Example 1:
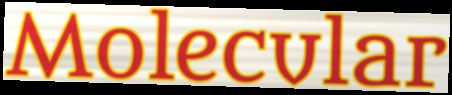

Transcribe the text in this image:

Molecular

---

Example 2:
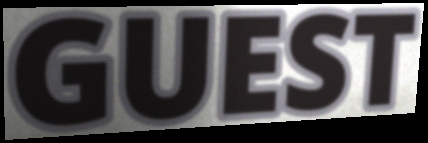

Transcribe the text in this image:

GUEST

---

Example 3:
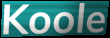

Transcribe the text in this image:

Koole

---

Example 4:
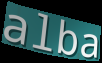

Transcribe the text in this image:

alba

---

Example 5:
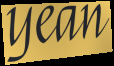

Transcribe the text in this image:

yean